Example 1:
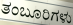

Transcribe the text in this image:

ತಂಬೂರಿಗಳು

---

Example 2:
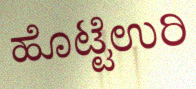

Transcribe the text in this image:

ಹೊಟ್ಟೆಉರಿ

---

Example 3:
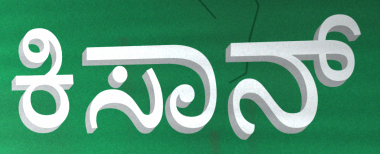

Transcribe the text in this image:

ಕಿಸಾನ್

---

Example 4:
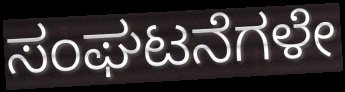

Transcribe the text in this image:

ಸಂಘಟನೆಗಳೇ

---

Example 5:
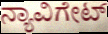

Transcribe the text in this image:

ನ್ಯಾವಿಗೇಟ್